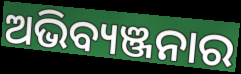
ଅଭିବ୍ୟଞ୍ଜନାର